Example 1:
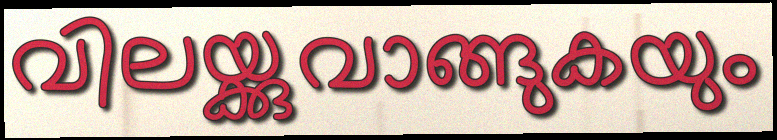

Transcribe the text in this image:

വിലയ്ക്കുവാങ്ങുകയും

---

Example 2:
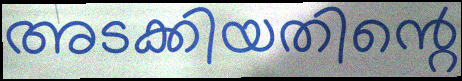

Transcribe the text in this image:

അടക്കിയതിന്റെ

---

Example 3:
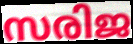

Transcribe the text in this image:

സരിജ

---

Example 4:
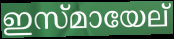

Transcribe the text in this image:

ഇസ്മായേല്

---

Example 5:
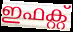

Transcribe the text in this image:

ഇഫക്റ്റ്